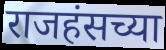
राजहंसच्या